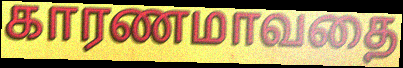
காரணமாவதை